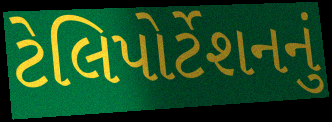
ટેલિપોર્ટેશનનું